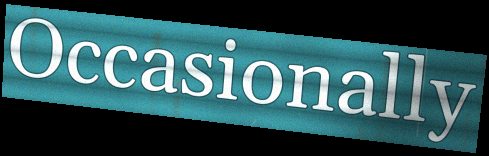
Occasionally